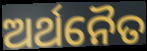
ଅର୍ଥନୈତ